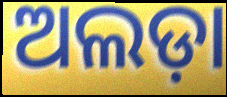
ଅଲଡ଼ା